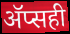
ॲप्सही